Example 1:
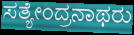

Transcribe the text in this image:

ಸತ್ಯೇಂದ್ರನಾಥರು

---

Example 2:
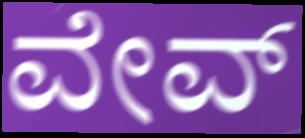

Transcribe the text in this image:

ವೇವ್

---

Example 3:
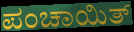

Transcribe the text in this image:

ಪಂಚಾಯಿತ್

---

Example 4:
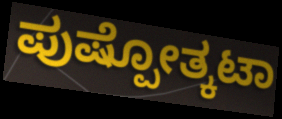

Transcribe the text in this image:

ಪುಷ್ಪೋತ್ಕಟಾ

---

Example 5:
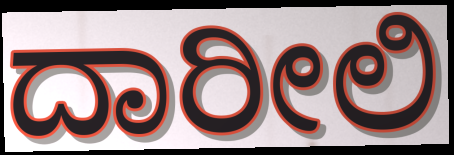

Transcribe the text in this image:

ದಾರೀಲಿ